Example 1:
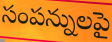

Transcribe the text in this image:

సంపన్నులపై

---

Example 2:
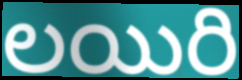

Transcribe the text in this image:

లయిరి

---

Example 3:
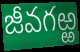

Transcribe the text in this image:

జీవగఱ్ఱ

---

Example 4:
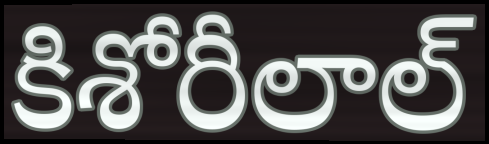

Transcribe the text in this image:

కిశోరీలాల్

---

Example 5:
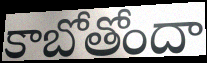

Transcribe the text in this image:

కాబోతోందా